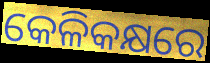
କେଳିକକ୍ଷରେ